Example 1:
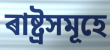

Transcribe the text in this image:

ৰাষ্ট্ৰসমূহে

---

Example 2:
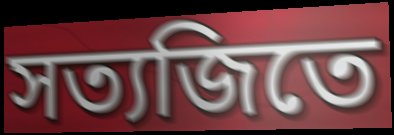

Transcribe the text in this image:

সত্যজিতে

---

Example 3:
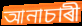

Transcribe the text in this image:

আনাচাৰী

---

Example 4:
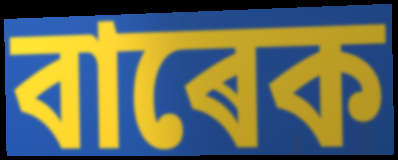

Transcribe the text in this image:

বাৰেক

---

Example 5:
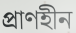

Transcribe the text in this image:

প্ৰাণহীন